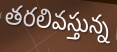
తరలివస్తున్న